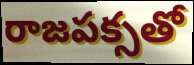
రాజపక్సతో